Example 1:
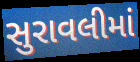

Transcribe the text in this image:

સુરાવલીમાં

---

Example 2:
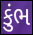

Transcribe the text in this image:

કુંભ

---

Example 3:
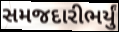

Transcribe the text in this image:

સમજદારીભર્યું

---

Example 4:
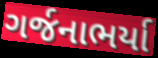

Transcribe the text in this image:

ગર્જનાભર્યા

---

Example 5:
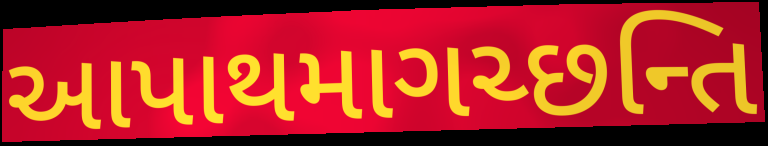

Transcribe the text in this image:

આપાથમાગચ્છન્તિ